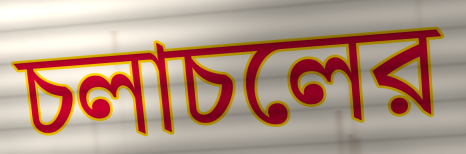
চলাচলের